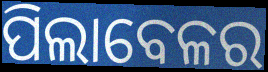
ପିଲାବେଳର